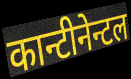
कान्टीनेन्टल